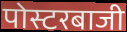
पोस्टरबाजी